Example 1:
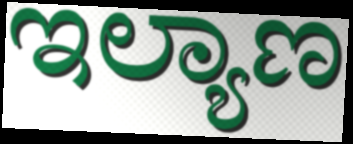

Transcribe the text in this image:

ಇಲ್ಯಾಣ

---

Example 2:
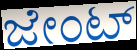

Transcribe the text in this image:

ಜೇಂಟ್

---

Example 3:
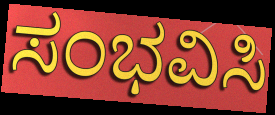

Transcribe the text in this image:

ಸಂಭವಿಸಿ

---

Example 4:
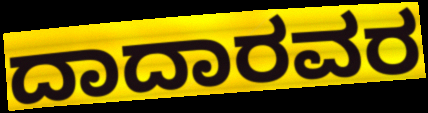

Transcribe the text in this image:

ದಾದಾರವರ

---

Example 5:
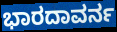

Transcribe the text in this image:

ಭಾರದಾವರ್ನ